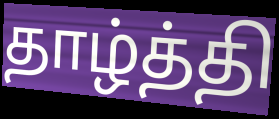
தாழ்த்தி